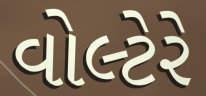
વોલ્ટેરે